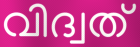
വിദ്വത്